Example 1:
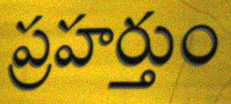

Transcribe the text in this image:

ప్రహర్తుం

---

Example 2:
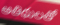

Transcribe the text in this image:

అతిథులతో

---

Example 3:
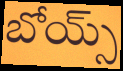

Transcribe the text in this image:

బోయ్స్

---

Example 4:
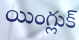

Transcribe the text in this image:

యింగ్లుక్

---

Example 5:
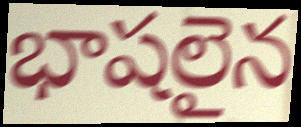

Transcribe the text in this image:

భాషలైన